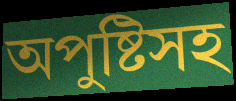
অপুষ্টিসহ